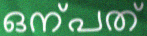
ഒന്പത്